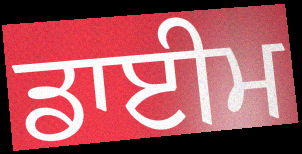
ਡਾਈਮ